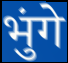
भुंगे